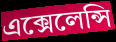
এক্সেলেন্সি